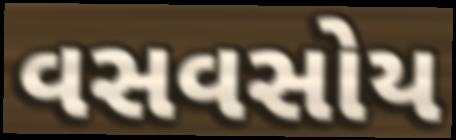
વસવસોય